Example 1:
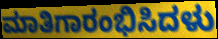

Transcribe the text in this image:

ಮಾತಿಗಾರಂಭಿಸಿದಳು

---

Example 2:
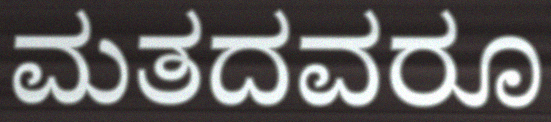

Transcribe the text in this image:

ಮತದವರೂ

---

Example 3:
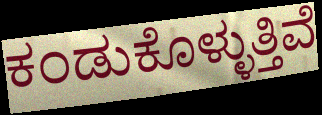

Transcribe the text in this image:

ಕಂಡುಕೊಳ್ಳುತ್ತಿವೆ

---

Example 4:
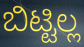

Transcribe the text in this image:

ಬಿಟ್ಟಿಲ್ಲ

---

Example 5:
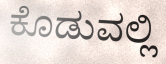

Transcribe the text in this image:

ಕೊಡುವಲ್ಲಿ